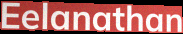
Eelanathan